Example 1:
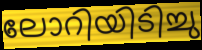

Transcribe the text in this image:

ലോറിയിടിച്ചു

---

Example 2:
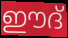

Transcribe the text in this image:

ഈദ്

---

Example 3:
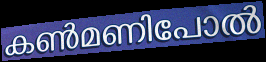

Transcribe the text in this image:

കൺമണിപോൽ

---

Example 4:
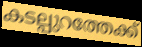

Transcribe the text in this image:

കടല്പുറത്തേക്ക്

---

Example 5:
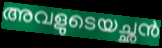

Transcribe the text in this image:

അവളുടെയച്ഛൻ